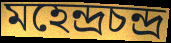
মহেন্দ্রচন্দ্র